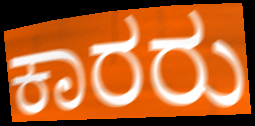
ಕಾರರು